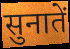
सुनातें